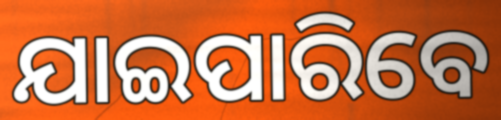
ଯାଇପାରିବେ